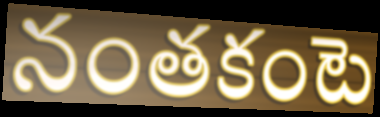
నంతకంటె